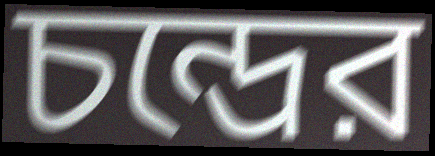
চন্দ্রের